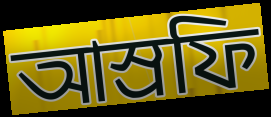
আস্রফি